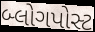
બ્લોગપોસ્ટ